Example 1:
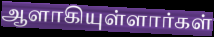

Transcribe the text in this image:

ஆளாகியுள்ளார்கள்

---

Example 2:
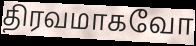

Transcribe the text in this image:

திரவமாகவோ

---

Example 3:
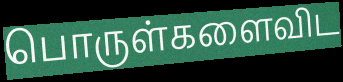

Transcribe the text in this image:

பொருள்களைவிட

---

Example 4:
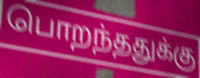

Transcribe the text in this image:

பொறந்ததுக்கு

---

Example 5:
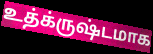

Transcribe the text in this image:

உத்க்ருஷ்டமாக